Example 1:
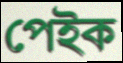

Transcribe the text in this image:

পেইক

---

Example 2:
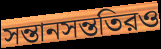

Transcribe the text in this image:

সন্তানসন্ততিরও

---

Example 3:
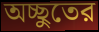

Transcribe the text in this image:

অচ্ছুতের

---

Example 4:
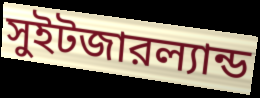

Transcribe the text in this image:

সুইটজারল্যান্ড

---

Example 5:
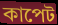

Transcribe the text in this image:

কাপেট